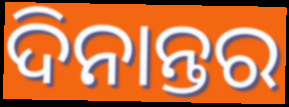
ଦିନାନ୍ତର